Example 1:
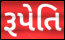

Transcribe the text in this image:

રૂપેતિ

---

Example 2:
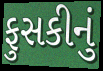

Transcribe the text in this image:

ફુસકીનું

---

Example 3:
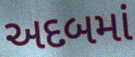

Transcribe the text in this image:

અદબમાં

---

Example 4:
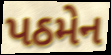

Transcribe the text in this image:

પઠમેન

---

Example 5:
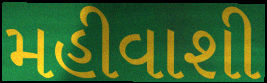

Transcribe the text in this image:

મહીવાશી